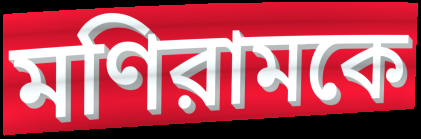
মণিরামকে